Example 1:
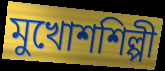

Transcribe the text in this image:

মুখোশশিল্পী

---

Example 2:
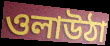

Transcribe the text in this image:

ওলাউঠা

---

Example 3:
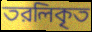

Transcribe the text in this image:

তরলিকৃত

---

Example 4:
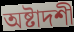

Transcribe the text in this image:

অষ্টাদশী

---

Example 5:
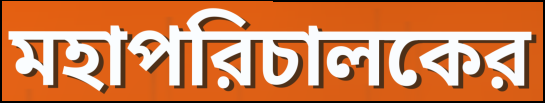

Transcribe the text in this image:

মহাপরিচালকের